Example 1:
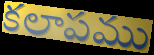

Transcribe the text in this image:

కలాపము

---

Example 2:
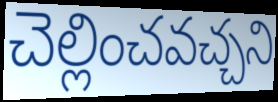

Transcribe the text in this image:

చెల్లించవచ్చని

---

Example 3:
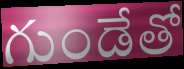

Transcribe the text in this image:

గుండేతో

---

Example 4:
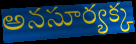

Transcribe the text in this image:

అనసూర్యక్క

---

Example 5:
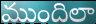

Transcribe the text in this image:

ముందిలా